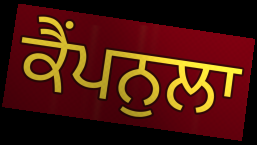
ਕੈਂਪਨੁਲਾ